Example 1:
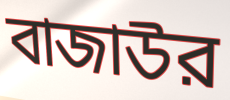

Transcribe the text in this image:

বাজাউর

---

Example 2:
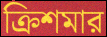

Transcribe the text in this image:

ক্রিশমার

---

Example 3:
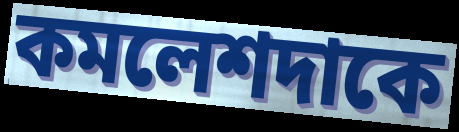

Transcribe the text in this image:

কমলেশদাকে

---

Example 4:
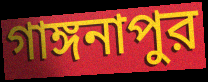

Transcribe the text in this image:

গাঙ্গনাপুর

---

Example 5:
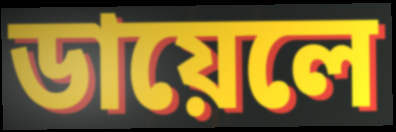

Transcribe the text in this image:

ডায়েলে